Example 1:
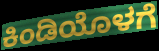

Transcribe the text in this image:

ಕಿಂಡಿಯೊಳಗೆ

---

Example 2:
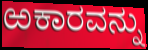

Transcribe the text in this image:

ಱಕಾರವನ್ನು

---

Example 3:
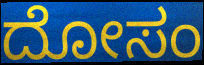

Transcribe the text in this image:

ದೋಸಂ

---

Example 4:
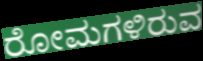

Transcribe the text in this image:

ರೋಮಗಳಿರುವ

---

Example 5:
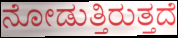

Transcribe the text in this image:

ನೋಡುತ್ತಿರುತ್ತದೆ